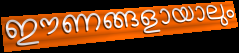
ഈണങ്ങളായാലും